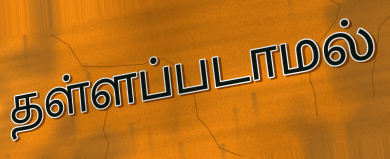
தள்ளப்படாமல்